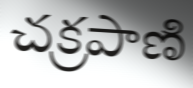
చక్రపాణి